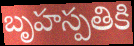
బృహస్పతికి